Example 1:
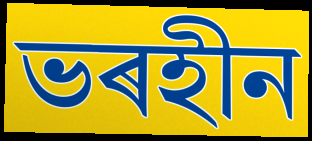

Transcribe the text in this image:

ভৰহীন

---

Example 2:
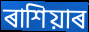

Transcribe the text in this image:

ৰাশিয়াৰ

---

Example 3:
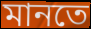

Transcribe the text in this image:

মানতে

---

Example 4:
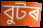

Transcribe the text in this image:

বুটৰ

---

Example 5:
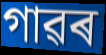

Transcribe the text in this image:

গাৱৰ